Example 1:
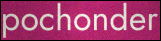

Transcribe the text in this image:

pochonder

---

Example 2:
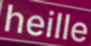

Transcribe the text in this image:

heille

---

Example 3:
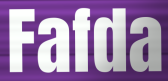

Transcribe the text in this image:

Fafda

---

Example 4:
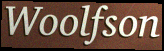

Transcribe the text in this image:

Woolfson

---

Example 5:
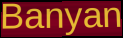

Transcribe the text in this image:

Banyan